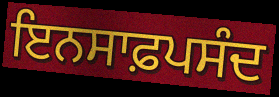
ਇਨਸਾਫ਼ਪਸੰਦ